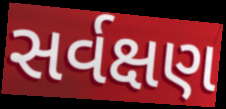
સર્વક્ષણ